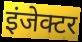
इंजेक्टर